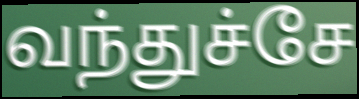
வந்துச்சே